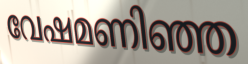
വേഷമണിഞ്ഞ